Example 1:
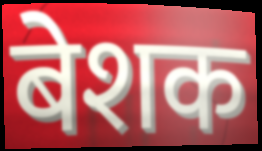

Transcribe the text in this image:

बेशक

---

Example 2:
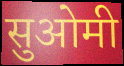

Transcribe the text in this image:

सुओमी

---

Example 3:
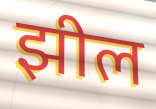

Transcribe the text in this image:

झील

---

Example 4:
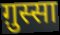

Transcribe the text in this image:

ग़ुस्सा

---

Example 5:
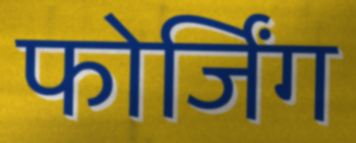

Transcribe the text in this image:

फोर्जिंग